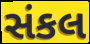
સંકલ